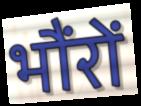
भौंरों